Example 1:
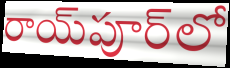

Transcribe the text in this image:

రాయ్‌పూర్‌లో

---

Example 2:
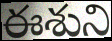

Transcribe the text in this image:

ఈశుని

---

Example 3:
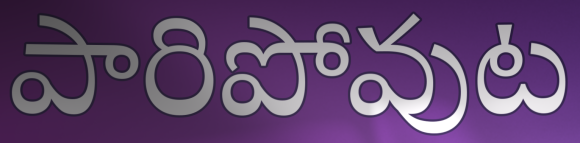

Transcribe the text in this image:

పారిపోవుట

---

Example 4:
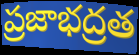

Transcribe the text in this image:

ప్రజాభద్రత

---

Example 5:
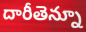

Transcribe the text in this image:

దారీతెన్నూ